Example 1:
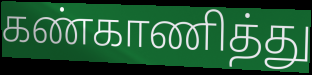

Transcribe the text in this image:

கண்காணித்து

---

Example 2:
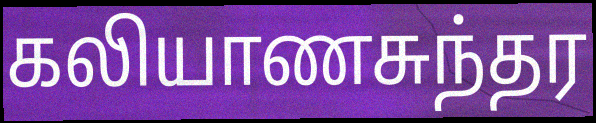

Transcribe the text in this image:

கலியாணசுந்தர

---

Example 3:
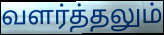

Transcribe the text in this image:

வளர்த்தலும்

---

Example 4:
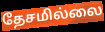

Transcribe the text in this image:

தேசமில்லை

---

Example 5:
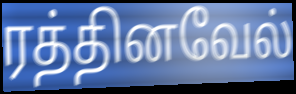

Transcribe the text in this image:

ரத்தினவேல்